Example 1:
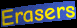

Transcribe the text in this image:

Erasers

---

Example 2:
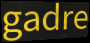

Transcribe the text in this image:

gadre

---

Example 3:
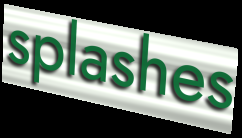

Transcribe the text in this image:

splashes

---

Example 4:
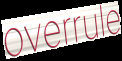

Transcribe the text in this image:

overrule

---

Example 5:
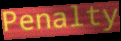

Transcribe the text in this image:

Penalty